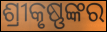
ଶ୍ରୀକୃଷ୍ଣଙ୍କର